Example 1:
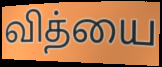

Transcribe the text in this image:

வித்யை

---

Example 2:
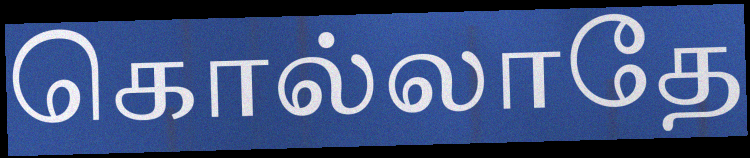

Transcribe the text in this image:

கொல்லாதே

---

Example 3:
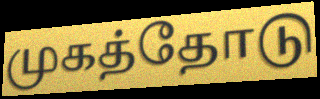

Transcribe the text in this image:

முகத்தோடு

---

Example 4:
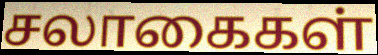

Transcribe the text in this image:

சலாகைகள்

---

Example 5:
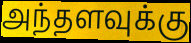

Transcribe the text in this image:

அந்தளவுக்கு